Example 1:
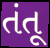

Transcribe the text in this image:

તંતૂ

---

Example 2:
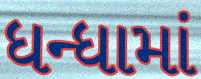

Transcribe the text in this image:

ધન્ધામાં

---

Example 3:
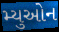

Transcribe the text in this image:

મ્યુઓન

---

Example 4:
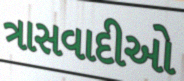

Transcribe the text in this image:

ત્રાસવાદીઓ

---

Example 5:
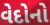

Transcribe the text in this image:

વેદોનો